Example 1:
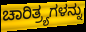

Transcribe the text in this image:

ಚಾರಿತ್ರ್ಯಗಳನ್ನು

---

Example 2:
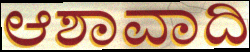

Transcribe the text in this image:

ಆಶಾವಾದಿ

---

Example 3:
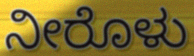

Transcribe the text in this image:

ನೀರೊಳು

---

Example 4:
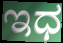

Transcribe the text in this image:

ಇಧ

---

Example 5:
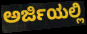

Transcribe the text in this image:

ಅರ್ಜಿಯಲ್ಲಿ